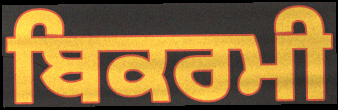
ਬਿਕਰਮੀ